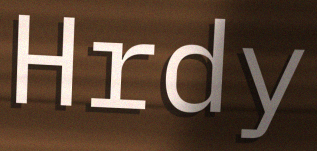
Hrdy